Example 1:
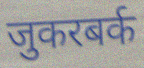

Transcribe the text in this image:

जुकरबर्क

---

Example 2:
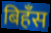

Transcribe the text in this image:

बिहँस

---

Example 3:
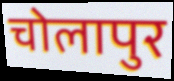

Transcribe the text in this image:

चोलापुर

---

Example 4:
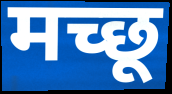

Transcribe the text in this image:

मच्छू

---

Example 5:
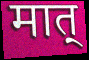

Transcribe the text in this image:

मात्